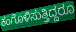
ಕಂಗೊಳಿಸುತ್ತಿದ್ದರೂ